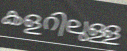
കളറിലുള്ള